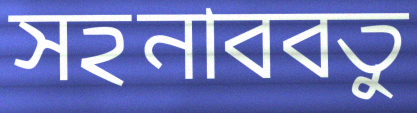
সহনাববতু